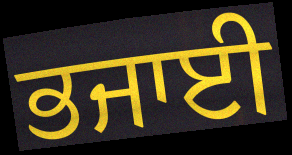
ਭਜਾਈ